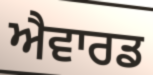
ਐਵਾਰਡ